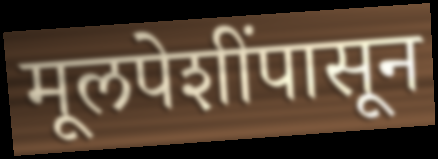
मूलपेशींपासून